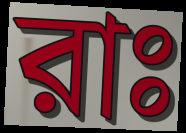
রাঃ